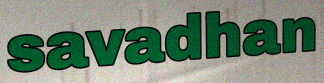
savadhan